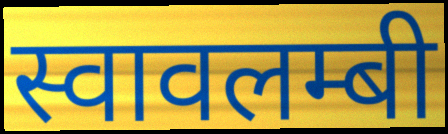
स्वावलम्बी